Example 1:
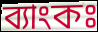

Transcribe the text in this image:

ব্যাংকঃ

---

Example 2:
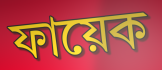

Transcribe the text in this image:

ফায়েক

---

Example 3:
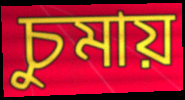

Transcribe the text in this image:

চুমায়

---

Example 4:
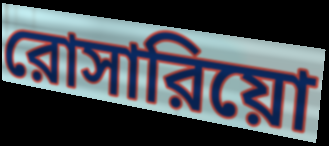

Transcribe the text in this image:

রোসারিয়ো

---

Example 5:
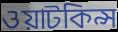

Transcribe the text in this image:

ওয়াটকিন্স